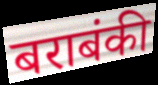
बराबंकी